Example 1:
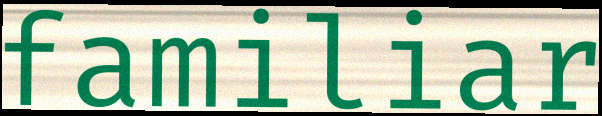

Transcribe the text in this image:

familiar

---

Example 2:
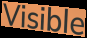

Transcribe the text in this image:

Visible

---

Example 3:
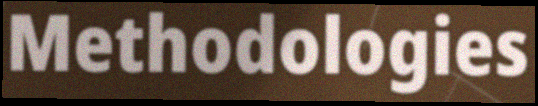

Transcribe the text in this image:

Methodologies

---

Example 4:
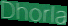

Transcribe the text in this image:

Dhorla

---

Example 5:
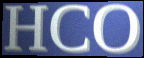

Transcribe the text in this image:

HCO